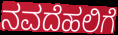
ನವದೆಹಲಿಗೆ